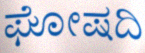
ಘೋಷದಿ